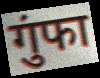
गुंफा